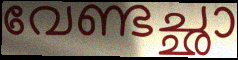
വേണ്ടച്ഛാ